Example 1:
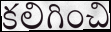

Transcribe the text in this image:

కలిగించి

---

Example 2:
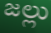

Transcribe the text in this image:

జల్లు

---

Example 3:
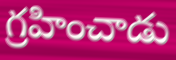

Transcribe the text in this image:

గ్రహించాడు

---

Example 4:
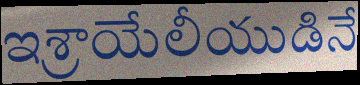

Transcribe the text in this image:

ఇశ్రాయేలీయుడినే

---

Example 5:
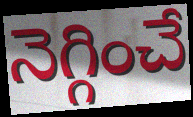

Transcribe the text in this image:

నెగ్గించే